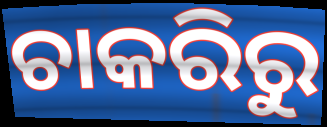
ଚାକରିରୁ